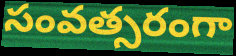
సంవత్సరంగా